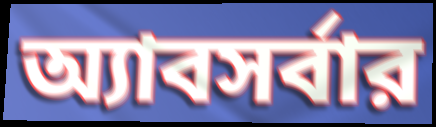
অ্যাবসর্বার